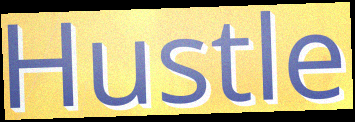
Hustle